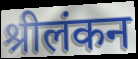
श्रीलंकन